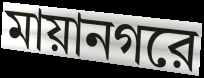
মায়ানগরে